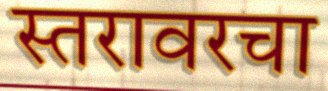
स्तरावरचा